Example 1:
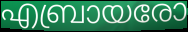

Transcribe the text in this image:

എബ്രായരോ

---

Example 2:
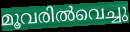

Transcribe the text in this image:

മൂവരിൽവെച്ചു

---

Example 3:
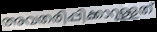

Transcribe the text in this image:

അവതരിപ്പിക്കാറുള്ളത്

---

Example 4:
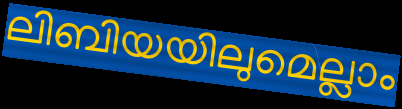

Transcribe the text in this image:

ലിബിയയിലുമെല്ലാം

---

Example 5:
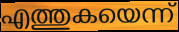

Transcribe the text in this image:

എത്തുകയെന്ന്